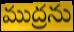
ముద్రను